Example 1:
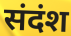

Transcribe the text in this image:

संदंश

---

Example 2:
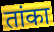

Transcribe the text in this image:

तांका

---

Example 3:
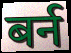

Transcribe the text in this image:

बर्न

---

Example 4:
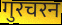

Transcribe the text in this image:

गुरचरन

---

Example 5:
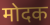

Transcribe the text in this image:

मोदक